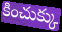
కించుక్కు